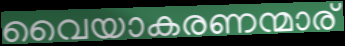
വൈയാകരണന്മാര്